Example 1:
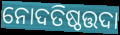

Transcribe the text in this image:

ନୋଦତିଷ୍ଠତ୍ତଦା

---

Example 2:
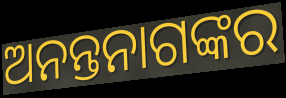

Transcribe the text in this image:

ଅନନ୍ତନାଗଙ୍କର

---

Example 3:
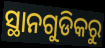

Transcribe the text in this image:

ସ୍ଥାନଗୁଡିକରୁ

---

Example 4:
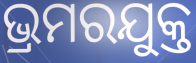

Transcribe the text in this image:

ଭ୍ରମରଯୁକ୍ତ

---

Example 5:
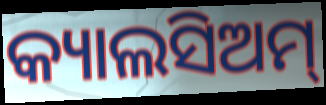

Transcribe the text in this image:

କ୍ୟାଲସିଅମ୍